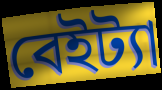
বেইট্যা